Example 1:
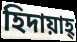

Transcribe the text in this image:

হিদায়াহ্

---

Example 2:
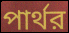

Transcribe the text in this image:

পার্থর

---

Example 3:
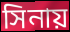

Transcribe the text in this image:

সিনায়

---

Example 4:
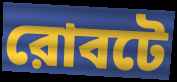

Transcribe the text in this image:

রোবটে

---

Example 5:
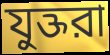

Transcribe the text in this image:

যুক্তরা